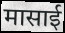
मासाई